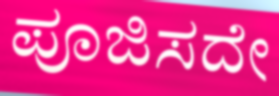
ಪೂಜಿಸದೇ